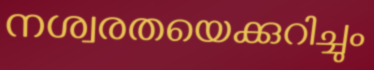
നശ്വരതയെക്കുറിച്ചും